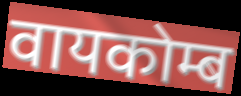
वायकोम्ब